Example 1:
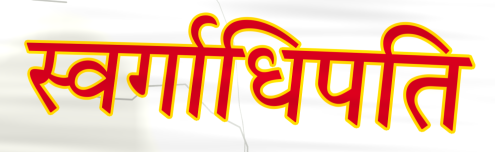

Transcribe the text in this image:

स्वर्गाधिपति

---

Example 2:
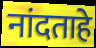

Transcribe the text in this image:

नांदताहे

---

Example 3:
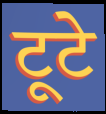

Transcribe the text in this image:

टूटे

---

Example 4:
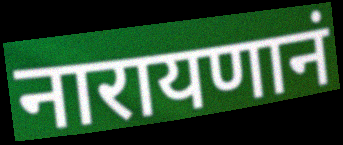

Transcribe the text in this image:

नारायणानं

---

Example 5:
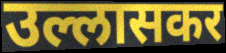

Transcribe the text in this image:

उल्लासकर